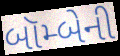
બૉમ્બેની